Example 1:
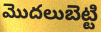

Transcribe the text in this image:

మొదలుబెట్టి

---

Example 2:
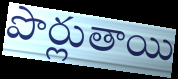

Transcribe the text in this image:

పొర్లుతాయి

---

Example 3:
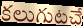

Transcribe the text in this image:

కలుగుటచే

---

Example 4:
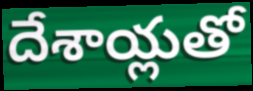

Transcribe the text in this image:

దేశాయ్లతో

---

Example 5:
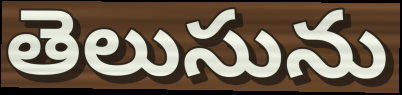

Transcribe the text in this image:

తెలుసును